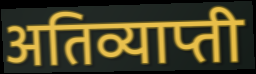
अतिव्याप्ती